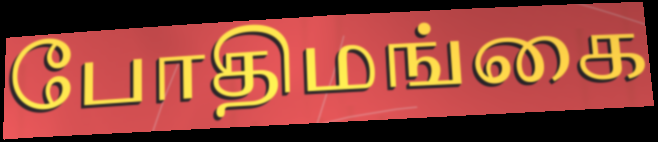
போதிமங்கை